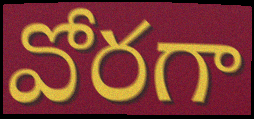
వోరగా